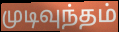
முடிவுந்தம்